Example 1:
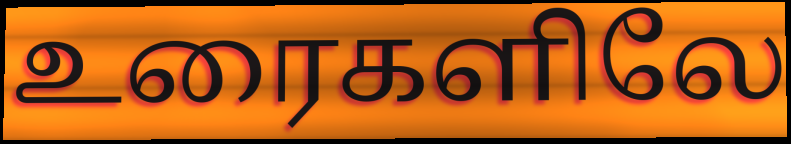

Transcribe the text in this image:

உரைகளிலே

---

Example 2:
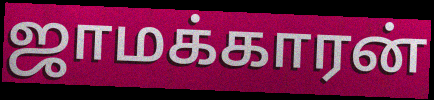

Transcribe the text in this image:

ஜாமக்காரன்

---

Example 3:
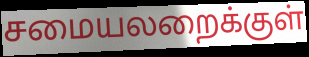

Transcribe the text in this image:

சமையலறைக்குள்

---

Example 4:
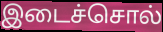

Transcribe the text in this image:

இடைச்சொல்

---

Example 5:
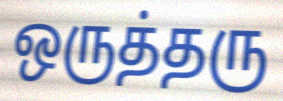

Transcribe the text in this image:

ஒருத்தரு